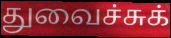
துவைச்சுக்